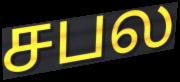
சபல